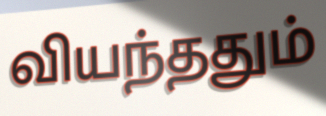
வியந்ததும்